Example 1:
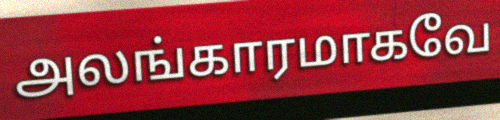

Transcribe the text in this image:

அலங்காரமாகவே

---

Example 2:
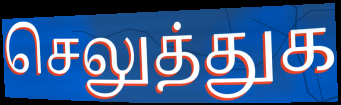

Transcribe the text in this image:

செலுத்துக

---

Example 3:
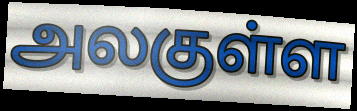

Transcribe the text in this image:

அலகுள்ள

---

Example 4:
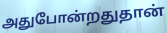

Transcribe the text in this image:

அதுபோன்றதுதான்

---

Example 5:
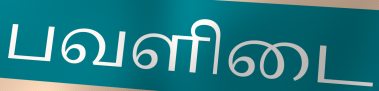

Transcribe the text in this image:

பவளிடை